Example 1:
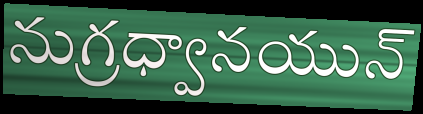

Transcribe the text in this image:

నుగ్రధ్వానయున్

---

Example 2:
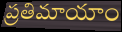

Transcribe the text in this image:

ప్రతిమాయాం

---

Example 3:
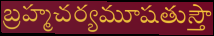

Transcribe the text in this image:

బ్రహ్మచర్యమూషతుస్తౌ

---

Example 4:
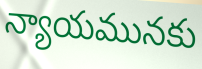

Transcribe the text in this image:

న్యాయమునకు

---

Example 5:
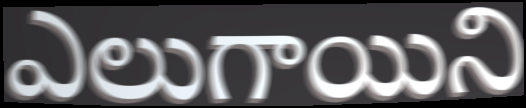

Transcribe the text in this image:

ఎలుగాయిని